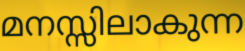
മനസ്സിലാകുന്ന